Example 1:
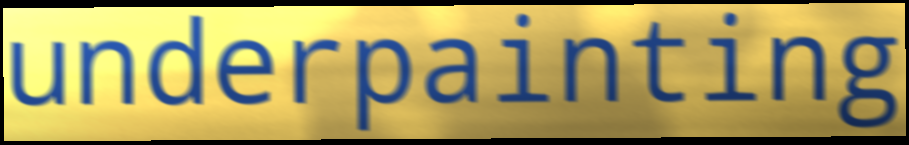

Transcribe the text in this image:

underpainting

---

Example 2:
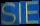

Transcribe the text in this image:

SIE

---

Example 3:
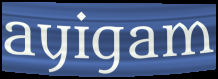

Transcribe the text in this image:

ayigam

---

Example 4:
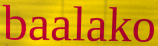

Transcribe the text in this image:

baalako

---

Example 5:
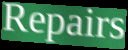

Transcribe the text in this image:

Repairs